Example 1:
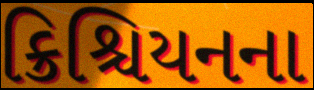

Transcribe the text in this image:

ક્રિશ્ચિયનના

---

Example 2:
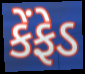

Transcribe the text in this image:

કેંફેડ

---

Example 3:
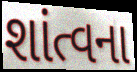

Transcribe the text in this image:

શાંત્વના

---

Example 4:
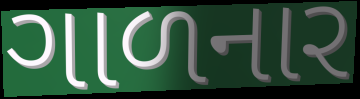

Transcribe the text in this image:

ગાળનાર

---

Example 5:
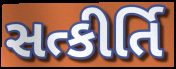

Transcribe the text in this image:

સત્કીર્તિ